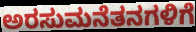
ಅರಸುಮನೆತನಗಳಿಗೆ